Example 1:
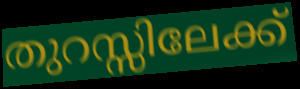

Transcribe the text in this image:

തുറസ്സിലേക്ക്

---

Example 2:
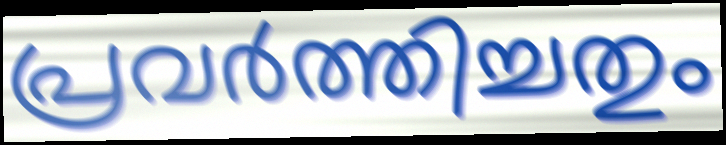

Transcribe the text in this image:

പ്രവർത്തിച്ചതും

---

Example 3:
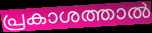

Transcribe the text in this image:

പ്രകാശത്താൽ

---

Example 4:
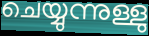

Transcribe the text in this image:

ചെയ്യുന്നുള്ളു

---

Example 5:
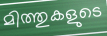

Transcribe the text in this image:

മിത്തുകളുടെ